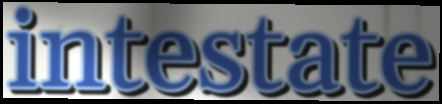
intestate